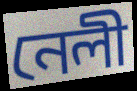
নেলী